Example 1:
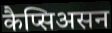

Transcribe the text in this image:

कैप्सिअसन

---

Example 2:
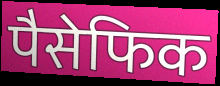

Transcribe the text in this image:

पैसेफिक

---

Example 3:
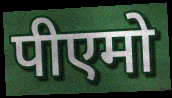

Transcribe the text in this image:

पीएमो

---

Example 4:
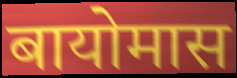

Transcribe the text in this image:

बायोमास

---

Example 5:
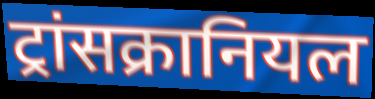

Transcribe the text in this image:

ट्रांसक्रानियल